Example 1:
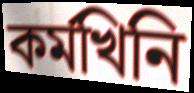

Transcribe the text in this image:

কৰ্মখিনি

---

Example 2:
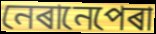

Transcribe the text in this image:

নেৰানেপেৰা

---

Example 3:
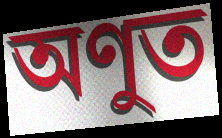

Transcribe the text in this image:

অণুত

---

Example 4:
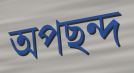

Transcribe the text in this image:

অপছন্দ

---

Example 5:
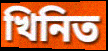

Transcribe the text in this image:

খিনিত